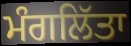
ਮੰਗਲਿੱਤਾ